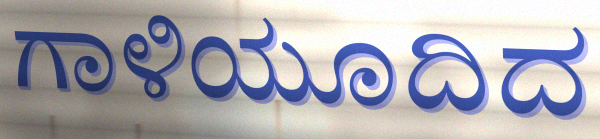
ಗಾಳಿಯೂದಿದ